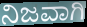
ನಿಜವಾಗಿ